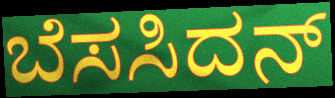
ಬೆಸಸಿದನ್